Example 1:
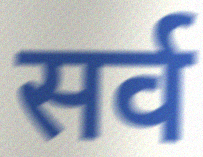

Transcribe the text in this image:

सर्व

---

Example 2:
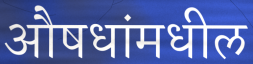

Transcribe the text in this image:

औषधांमधील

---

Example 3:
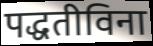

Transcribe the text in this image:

पद्धतीविना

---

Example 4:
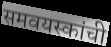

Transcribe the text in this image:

समवयस्कांची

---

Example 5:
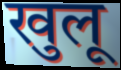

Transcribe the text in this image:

खुलू